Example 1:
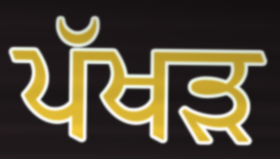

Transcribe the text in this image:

ਪੱਖੜ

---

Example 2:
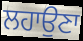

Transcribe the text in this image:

ਲਹਾਉਣਾ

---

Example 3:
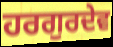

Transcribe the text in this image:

ਹਰਗੁਰਦੇਵ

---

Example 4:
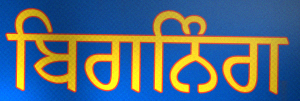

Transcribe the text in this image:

ਬਿਗਨਿੰਗ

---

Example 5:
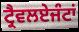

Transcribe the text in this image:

ਟ੍ਰੈਵਲਏਜੰਟਾਂ